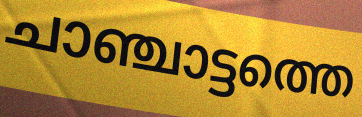
ചാഞ്ചാട്ടത്തെ